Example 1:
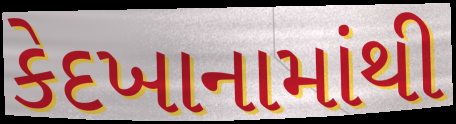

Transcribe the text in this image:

કેદખાનામાંથી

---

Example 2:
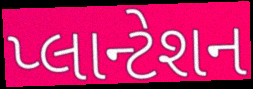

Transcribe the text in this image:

પ્લાન્ટેશન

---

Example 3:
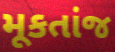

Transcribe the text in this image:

મૂકતાંજ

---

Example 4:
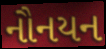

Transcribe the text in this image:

નૌનયન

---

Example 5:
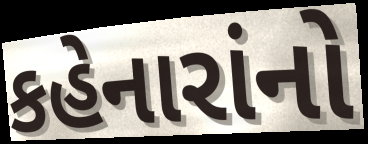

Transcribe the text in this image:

કહેનારાંનો